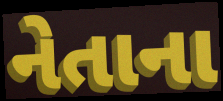
નેતાના